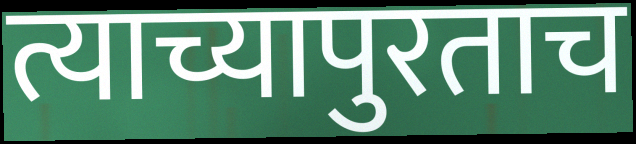
त्याच्यापुरताच